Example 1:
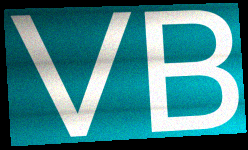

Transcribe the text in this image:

VB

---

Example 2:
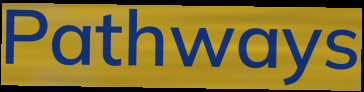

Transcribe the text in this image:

Pathways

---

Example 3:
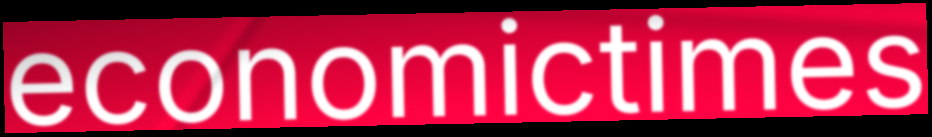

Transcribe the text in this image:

economictimes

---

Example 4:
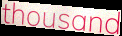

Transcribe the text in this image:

thousand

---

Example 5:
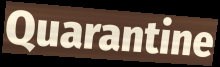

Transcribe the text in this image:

Quarantine